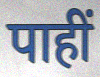
पाहीं